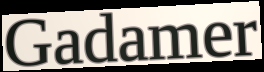
Gadamer